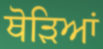
ਥੋੜਿਆਂ